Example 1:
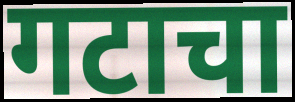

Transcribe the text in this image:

गटाचा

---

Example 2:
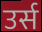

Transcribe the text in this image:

उर्स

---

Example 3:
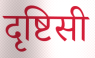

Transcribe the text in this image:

दृष्टिसी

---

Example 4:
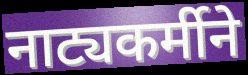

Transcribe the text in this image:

नाट्यकर्मीने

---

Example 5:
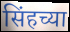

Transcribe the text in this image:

सिंहच्या